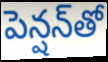
పెన్షన్‌తో